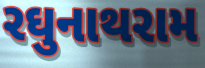
રઘુનાથરામ